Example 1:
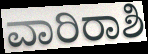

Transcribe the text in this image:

ವಾರಿರಾಶಿ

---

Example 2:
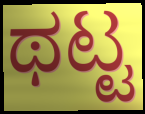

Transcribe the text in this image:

ಥಟ್ಟ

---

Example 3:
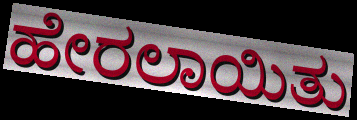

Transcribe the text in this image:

ಹೇರಲಾಯಿತು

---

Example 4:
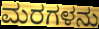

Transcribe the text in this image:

ಮರಗಳನು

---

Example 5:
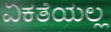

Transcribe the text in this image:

ಏಕತೆಯಲ್ಲ